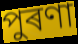
পুৰণা